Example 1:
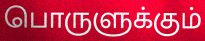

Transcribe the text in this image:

பொருளுக்கும்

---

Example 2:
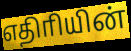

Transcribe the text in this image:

எதிரியின்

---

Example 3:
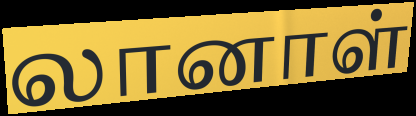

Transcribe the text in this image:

லானாள்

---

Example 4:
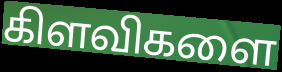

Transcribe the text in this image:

கிளவிகளை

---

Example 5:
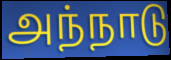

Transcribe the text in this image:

அந்நாடு